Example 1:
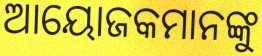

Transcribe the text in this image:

ଆୟୋଜକମାନଙ୍କୁ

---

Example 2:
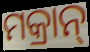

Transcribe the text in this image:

ମକ୍ରାନ୍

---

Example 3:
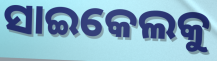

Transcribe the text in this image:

ସାଇକେଲକୁ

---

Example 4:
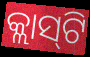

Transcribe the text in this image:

କ୍ଲାସ୍‌ଟି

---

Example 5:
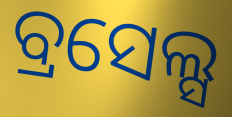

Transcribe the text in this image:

ବ୍ରସେଲ୍ସ